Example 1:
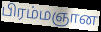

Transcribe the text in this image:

பிரம்மஞான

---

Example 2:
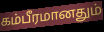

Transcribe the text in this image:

கம்பீரமானதும்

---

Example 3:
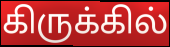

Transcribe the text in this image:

கிருக்கில்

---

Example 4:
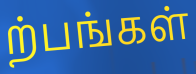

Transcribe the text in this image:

ற்பங்கள்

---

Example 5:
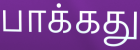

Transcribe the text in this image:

பாக்கது